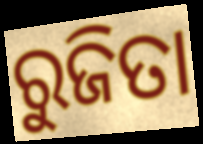
ରୁଜିତା